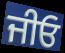
ਜੀਓ